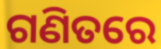
ଗଣିତରେ